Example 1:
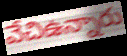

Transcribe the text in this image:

వేచిఉన్నారు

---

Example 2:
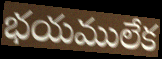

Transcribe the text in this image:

భయములేక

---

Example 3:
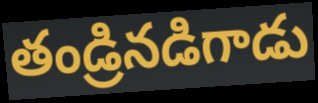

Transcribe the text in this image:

తండ్రినడిగాడు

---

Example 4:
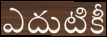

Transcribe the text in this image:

ఎదుటికీ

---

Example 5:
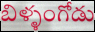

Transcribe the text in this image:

బిళ్ళంగోడు